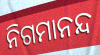
ନିଗମାନନ୍ଦ